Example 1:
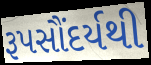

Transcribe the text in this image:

રૂપસૌંદર્યથી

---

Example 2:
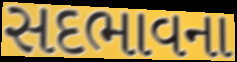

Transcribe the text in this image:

સદભાવના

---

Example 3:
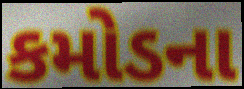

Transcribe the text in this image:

કમોડના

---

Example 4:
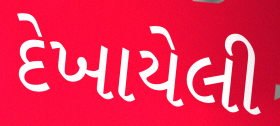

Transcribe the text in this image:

દેખાયેલી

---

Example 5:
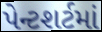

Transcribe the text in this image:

પેન્ટશર્ટમાં